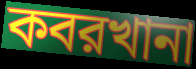
কবরখানা